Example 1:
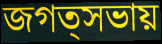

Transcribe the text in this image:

জগত্সভায়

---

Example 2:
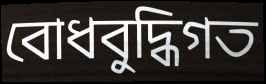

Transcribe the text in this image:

বোধবুদ্ধিগত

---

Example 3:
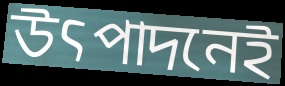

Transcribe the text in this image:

উৎপাদনেই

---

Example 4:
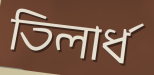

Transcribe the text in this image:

তিলার্ধ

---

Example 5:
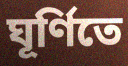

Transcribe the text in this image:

ঘূর্ণিতে